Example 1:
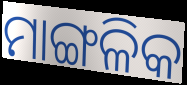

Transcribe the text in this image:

ମାଙ୍ଗଳିକ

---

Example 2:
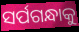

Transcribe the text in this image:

ସର୍ପଗନ୍ଧାକୁ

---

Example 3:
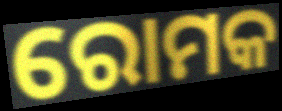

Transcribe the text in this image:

ରୋମକ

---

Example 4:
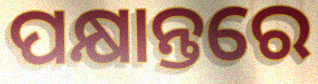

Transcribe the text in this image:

ପକ୍ଷାନ୍ତରେ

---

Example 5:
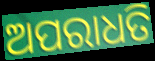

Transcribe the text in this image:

ଅପରାଧତି